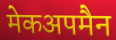
मेकअपमैन